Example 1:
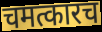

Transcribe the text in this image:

चमत्कारच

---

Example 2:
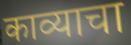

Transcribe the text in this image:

काव्याचा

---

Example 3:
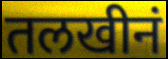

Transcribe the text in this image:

तलखीनं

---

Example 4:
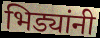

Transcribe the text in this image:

भिड्यांनी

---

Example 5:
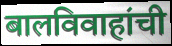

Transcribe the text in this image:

बालविवाहांची